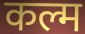
कल्म